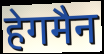
हेगमैन